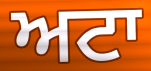
ਅਟਾ